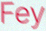
Fey